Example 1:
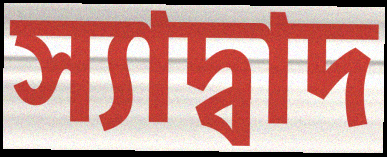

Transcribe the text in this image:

স্যাদ্বাদ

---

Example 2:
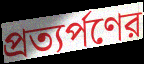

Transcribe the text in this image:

প্রত্যর্পণের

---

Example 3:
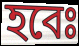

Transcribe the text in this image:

হবেঃ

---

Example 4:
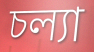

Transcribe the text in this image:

চল্যা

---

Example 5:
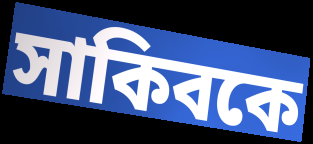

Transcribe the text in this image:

সাকিবকে